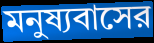
মনুষ্যবাসের